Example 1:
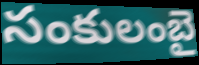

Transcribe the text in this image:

సంకులంబై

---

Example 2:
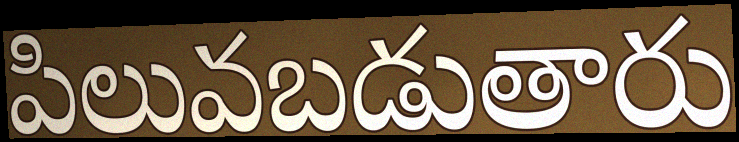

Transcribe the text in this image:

పిలువబడుతారు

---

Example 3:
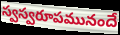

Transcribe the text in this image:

స్వస్వరూపమునందే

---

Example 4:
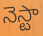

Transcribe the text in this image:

నెస్టా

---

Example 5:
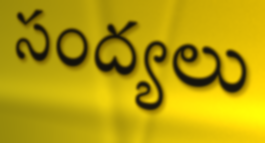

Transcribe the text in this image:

సంద్యలు